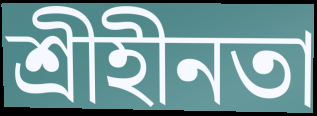
শ্রীহীনতা